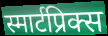
स्मार्टप्रिक्स